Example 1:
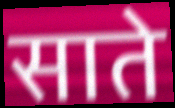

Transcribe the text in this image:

साते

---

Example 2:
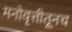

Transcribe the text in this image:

मनोवृत्तीतूनच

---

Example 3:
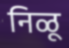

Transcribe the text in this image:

निळू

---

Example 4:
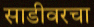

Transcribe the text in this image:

साडीवरचा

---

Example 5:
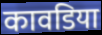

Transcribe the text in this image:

कावडिया